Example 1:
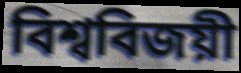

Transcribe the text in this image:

বিশ্ববিজয়ী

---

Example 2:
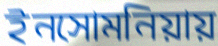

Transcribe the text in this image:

ইনসোমনিয়ায়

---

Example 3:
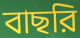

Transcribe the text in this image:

বাছরি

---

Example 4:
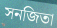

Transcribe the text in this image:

সনজিতা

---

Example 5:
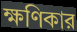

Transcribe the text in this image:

ক্ষণিকার